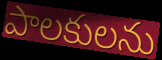
పాలకులను